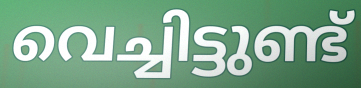
വെച്ചിട്ടുണ്ട്